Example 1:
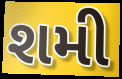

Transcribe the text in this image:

શમી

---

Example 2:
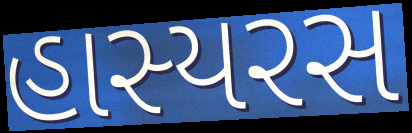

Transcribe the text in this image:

હાસ્યરસ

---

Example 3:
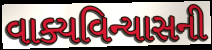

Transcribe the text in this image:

વાક્યવિન્યાસની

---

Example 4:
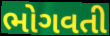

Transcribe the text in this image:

ભોગવતી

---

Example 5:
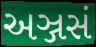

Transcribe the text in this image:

અઞ્જસં